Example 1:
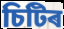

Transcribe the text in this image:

চিটিৰ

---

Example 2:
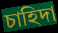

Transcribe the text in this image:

চাহিদা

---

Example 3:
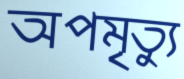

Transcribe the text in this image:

অপমৃত্যু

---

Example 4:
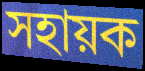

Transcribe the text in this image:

সহায়ক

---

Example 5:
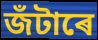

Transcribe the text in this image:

জঁটাৰে